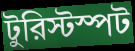
টুরিস্টস্পট